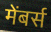
मेंबर्स